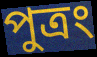
পুত্রং